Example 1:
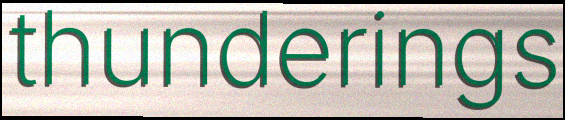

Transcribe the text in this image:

thunderings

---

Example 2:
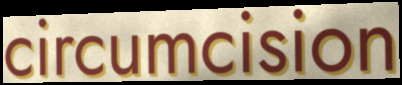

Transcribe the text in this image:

circumcision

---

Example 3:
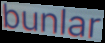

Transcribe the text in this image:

bunlar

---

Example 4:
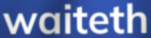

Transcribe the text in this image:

waiteth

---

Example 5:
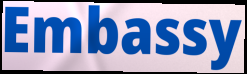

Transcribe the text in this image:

Embassy